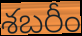
శబరీం